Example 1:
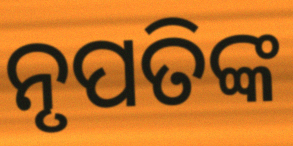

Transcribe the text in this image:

ନୃପତିଙ୍କ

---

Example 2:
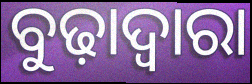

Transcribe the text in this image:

ବୁଢ଼ାଦ୍ୱାରା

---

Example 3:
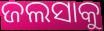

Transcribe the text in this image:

ଜଲସାକୁ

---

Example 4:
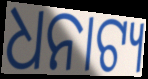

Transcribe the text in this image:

ଧନାଟ୍ୟ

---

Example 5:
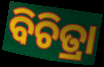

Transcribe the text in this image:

ବିଚିତ୍ରା